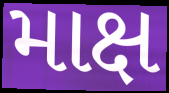
માક્ષ